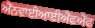
ਐੱਨਵਾਈਆਈਐੱਫਐੱਫ